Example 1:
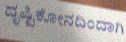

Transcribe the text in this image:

ದೃಷ್ಟಿಕೋನದಿಂದಾಗಿ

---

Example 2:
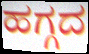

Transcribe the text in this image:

ಹಗ್ಗದ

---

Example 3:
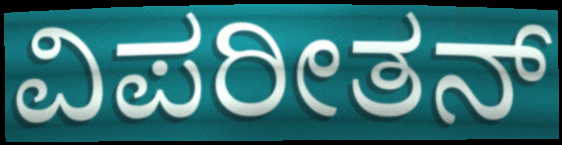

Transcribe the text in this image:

ವಿಪರೀತನ್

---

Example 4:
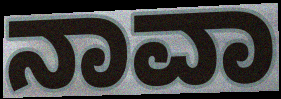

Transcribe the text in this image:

ನಾವಾ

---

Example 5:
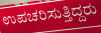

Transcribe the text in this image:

ಉಪಚರಿಸುತ್ತಿದ್ದರು